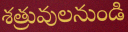
శత్రువులనుండి